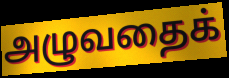
அழுவதைக்